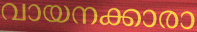
വായനക്കാരാ